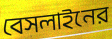
বেসলাইনের